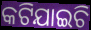
କଟିଯାଇଚି